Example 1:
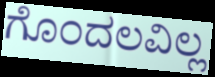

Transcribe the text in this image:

ಗೊಂದಲವಿಲ್ಲ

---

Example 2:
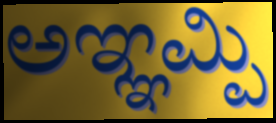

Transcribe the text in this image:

ಅಞ್ಞಮ್ಪಿ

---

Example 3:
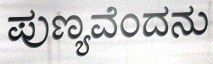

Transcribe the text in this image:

ಪುಣ್ಯವೆಂದನು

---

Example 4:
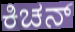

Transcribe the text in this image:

ಕಿಚನ್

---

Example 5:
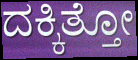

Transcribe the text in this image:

ದಕ್ಕಿತ್ತೋ